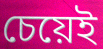
চেয়েই